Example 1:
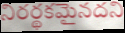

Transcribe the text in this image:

నిరర్థకమైనదని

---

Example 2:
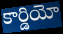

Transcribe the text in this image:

కార్డియో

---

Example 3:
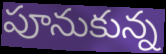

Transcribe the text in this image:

పూనుకున్న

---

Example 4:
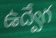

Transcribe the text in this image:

ఉద్వేగ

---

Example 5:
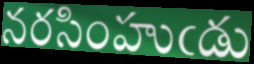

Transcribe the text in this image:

నరసింహుఁడు